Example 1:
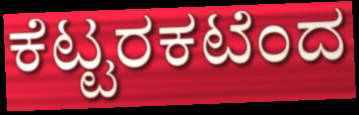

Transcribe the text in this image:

ಕೆಟ್ಟರಕಟೆಂದ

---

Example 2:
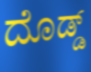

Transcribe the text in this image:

ದೊಡ್ಡ್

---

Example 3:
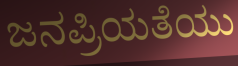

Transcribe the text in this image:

ಜನಪ್ರಿಯತೆಯು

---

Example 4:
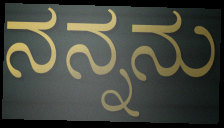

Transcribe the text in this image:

ನನ್ನನು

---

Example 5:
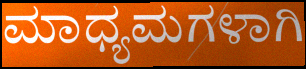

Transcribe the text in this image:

ಮಾಧ್ಯಮಗಳಾಗಿ